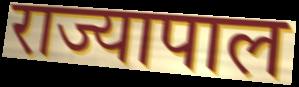
राज्यापाल